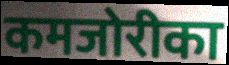
कमजोरीका